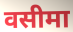
वसीमा